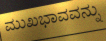
ಮುಖಭಾವವನ್ನು